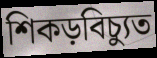
শিকড়বিচ্যুত